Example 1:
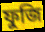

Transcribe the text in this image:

ফুজি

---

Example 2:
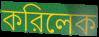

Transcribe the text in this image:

করিলেক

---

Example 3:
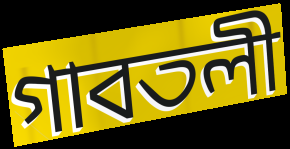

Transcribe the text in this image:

গাবতলী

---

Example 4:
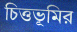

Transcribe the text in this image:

চিত্তভূমির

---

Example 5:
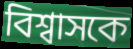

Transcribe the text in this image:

বিশ্বাসকে